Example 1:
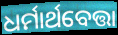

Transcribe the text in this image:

ଧର୍ମାର୍ଥବେତ୍ତା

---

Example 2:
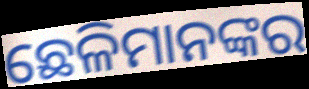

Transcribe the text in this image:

ଛେଳିମାନଙ୍କର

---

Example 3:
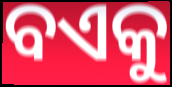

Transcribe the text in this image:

ବଏକୁ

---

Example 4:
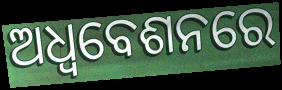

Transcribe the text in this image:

ଅଧ୍ଵବେଶନରେ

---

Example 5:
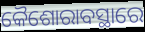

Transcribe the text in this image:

କୈଶୋରାବସ୍ଥାରେ